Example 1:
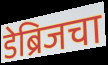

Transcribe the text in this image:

डेब्रिजचा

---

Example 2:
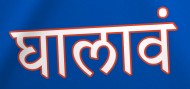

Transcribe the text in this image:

घालावं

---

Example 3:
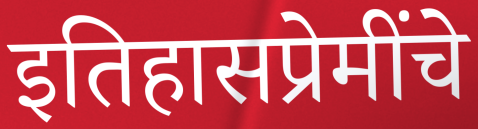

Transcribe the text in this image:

इतिहासप्रेमींचे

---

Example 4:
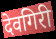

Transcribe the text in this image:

देवगिरी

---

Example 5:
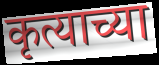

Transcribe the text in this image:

कृत्याच्या